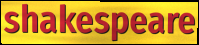
shakespeare